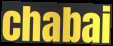
chabai